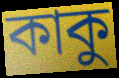
কাকু